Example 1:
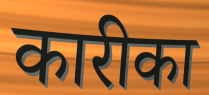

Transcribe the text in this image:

कारीका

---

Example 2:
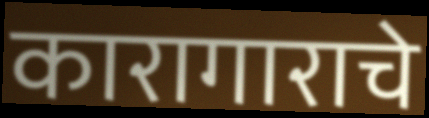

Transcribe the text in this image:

कारागाराचे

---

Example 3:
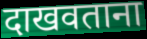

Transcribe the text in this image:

दाखवताना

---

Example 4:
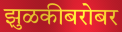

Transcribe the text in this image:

झुळकीबरोबर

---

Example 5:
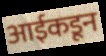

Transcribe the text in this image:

आईकडून